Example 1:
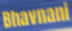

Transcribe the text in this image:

Bhavnani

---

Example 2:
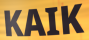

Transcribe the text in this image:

KAIK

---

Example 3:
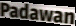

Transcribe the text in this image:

Padawan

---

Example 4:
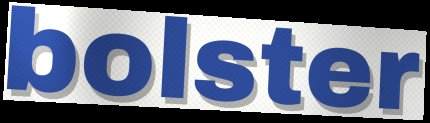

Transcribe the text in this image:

bolster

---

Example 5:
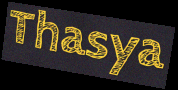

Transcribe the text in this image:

Thasya